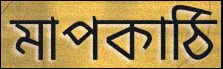
মাপকাঠি